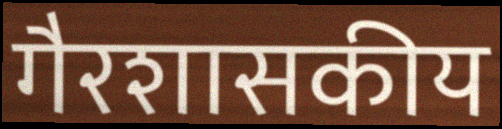
गैरशासकीय